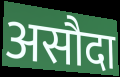
असौदा